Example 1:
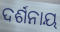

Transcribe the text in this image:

ଦର୍ଶନାୟ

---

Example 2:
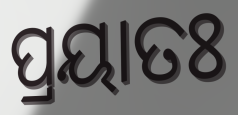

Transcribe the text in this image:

ପ୍ରୟାତଃ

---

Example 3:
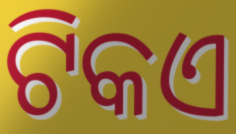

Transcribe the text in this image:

ଟିକଏ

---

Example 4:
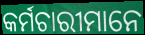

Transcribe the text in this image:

କର୍ମଚାରୀମାନେ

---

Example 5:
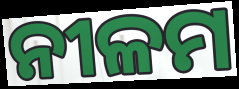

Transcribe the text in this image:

ନୀଳମ